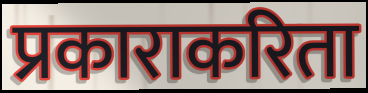
प्रकाराकरिता